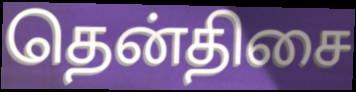
தென்திசை